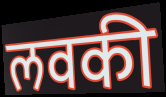
लवकी